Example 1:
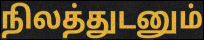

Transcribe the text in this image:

நிலத்துடனும்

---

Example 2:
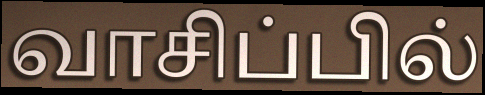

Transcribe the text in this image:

வாசிப்பில்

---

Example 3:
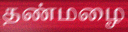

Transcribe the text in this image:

தண்மழை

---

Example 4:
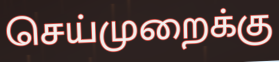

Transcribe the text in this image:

செய்முறைக்கு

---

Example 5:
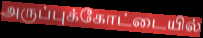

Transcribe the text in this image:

அருப்புக்கோட்டையில்